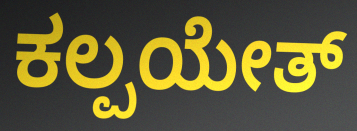
ಕಲ್ಪಯೇತ್